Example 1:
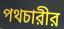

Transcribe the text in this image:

পথচারীর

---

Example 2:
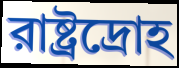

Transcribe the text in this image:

রাষ্ট্রদ্রোহ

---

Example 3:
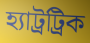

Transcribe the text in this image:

হ্যাট্রট্রিক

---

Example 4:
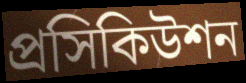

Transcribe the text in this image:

প্রসিকিউশন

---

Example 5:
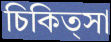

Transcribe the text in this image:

চিকিত্সা